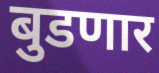
बुडणार